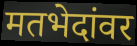
मतभेदांवर